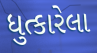
ધુત્કારેલા